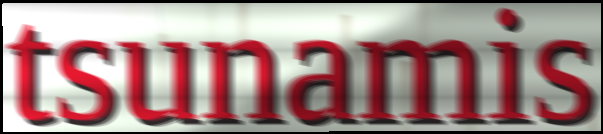
tsunamis